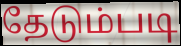
தேடும்படி